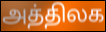
அத்திலக